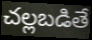
చల్లబడితే